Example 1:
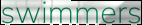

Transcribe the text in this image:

swimmers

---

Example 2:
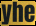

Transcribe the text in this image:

yhe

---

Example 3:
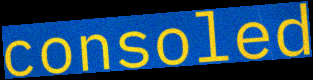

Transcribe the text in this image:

consoled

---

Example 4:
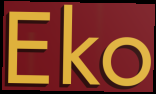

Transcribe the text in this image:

Eko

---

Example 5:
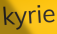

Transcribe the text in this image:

kyrie